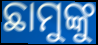
ଛାମୁଙ୍କୁ